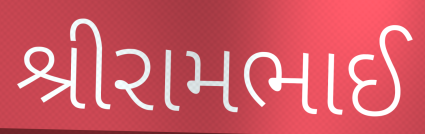
શ્રીરામભાઈ